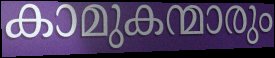
കാമുകന്മാരും